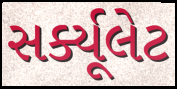
સર્ક્યૂલેટ